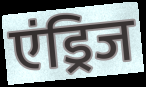
एंड्रिज